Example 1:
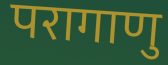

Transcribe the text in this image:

परागाणु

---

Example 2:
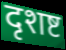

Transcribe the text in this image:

दृशष्ट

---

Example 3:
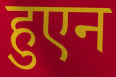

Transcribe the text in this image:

हुएन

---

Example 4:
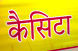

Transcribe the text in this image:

कैसिटा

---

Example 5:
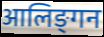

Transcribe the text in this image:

आलिङ्गन